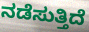
ನಡೆಸುತ್ತಿದೆ